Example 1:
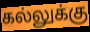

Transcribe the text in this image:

கல்லுக்கு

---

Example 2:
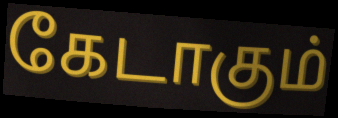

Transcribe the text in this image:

கேடாகும்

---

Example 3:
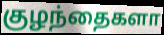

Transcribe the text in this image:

குழந்தைகளா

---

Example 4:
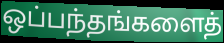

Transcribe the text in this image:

ஒப்பந்தங்களைத்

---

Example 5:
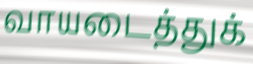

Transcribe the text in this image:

வாயடைத்துக்